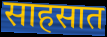
साहसात